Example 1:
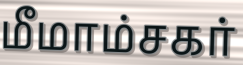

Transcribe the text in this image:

மீமாம்சகர்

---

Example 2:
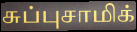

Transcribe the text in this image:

சுப்புசாமிக்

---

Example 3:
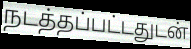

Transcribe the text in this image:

நடத்தப்பட்டதுடன்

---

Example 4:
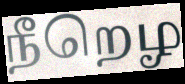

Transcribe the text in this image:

நீறெழ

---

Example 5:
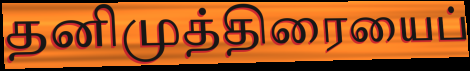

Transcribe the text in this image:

தனிமுத்திரையைப்